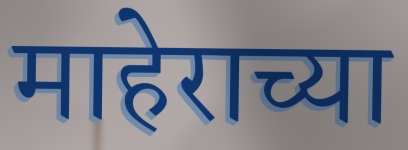
माहेराच्या